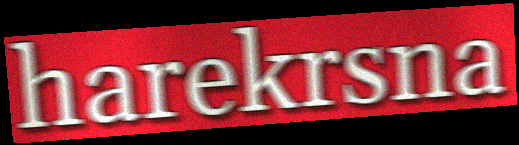
harekrsna